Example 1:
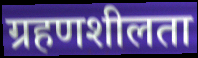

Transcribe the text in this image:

ग्रहणशीलता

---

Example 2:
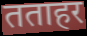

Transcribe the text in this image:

तताहर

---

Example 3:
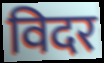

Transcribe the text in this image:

विदर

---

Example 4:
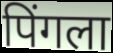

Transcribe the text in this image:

पिंगला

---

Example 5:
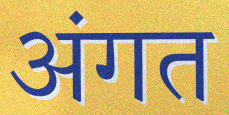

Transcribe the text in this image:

अंगत